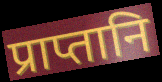
प्राप्तानि